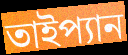
তাইপ্যান